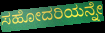
ಸಹೋದರಿಯನ್ನೇ